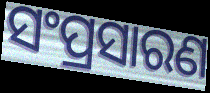
ସଂପ୍ରସାରଣ